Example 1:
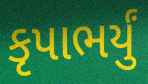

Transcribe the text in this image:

કૃપાભર્યું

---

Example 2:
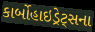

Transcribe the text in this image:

કાર્બોહાઇડ્રેટ્સના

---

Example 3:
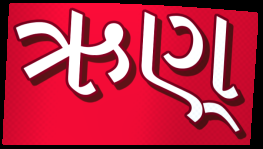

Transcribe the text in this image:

ઋણ્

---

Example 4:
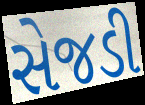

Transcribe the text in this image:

સેજડી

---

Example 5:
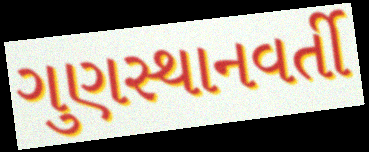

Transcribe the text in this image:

ગુણસ્થાનવર્તી